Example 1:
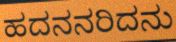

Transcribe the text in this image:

ಹದನನರಿದನು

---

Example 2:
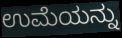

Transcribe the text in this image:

ಉಮೆಯನ್ನು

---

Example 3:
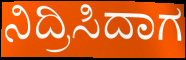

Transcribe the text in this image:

ನಿದ್ರಿಸಿದಾಗ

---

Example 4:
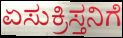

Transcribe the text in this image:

ಏಸುಕ್ರಿಸ್ತನಿಗೆ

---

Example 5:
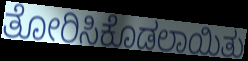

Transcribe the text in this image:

ತೋರಿಸಿಕೊಡಲಾಯಿತು